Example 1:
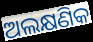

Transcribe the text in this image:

ଅଲକ୍ଷଣିକ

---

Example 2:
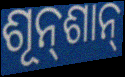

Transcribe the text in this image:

ଶୂନ୍‌ଶାନ୍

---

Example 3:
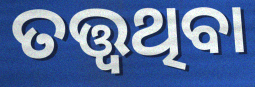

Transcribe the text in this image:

ତତ୍ତ୍ୱଥିବା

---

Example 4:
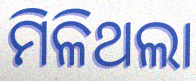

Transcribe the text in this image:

ମିଳିଥଲା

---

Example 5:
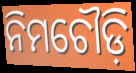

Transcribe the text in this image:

ନିମଚୌଡ଼ି